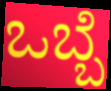
ಒಬ್ಬೆ